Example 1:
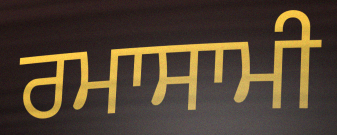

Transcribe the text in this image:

ਰਮਾਸਾਮੀ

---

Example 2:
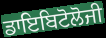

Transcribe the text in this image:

ਡਾਇਬਿਟੋਲੋਜੀ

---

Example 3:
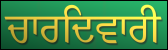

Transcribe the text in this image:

ਚਾਰਦਿਵਾਰੀ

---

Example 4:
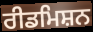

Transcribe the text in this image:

ਰੀਡਮਿਸ਼ਨ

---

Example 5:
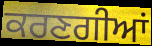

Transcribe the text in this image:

ਕਰਣਗੀਆਂ